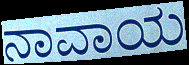
ನಾವಾಯ